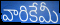
వారికేమీ